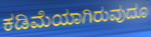
ಕಡಿಮೆಯಾಗಿರುವುದೂ